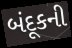
બંદૂકની